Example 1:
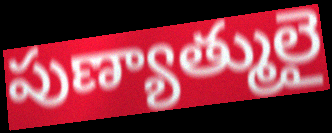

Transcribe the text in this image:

పుణ్యాత్ములై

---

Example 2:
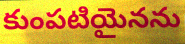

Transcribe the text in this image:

కుంపటియైనను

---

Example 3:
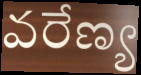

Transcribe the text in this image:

వరేణ్య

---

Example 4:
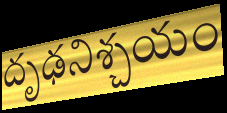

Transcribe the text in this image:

దృఢనిశ్చయం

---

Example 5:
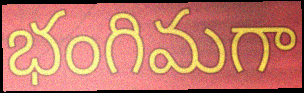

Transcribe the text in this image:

భంగిమగా